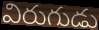
విరుగుడు